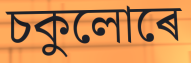
চকুলোৰে